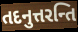
તદનુત્તરન્તિ